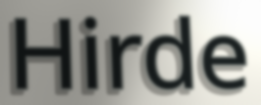
Hirde